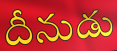
దీనుడు